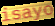
isayo